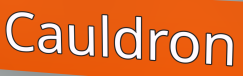
Cauldron